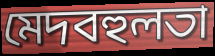
মেদবহুলতা